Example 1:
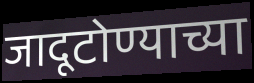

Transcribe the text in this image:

जादूटोण्याच्या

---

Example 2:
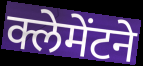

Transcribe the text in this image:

क्लेमेंटने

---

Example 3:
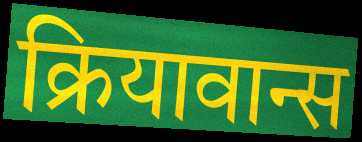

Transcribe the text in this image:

क्रियावान्स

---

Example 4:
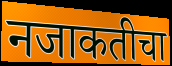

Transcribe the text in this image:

नजाकतीचा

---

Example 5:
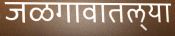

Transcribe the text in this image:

जळगावातल्या